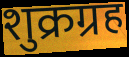
शुक्रग्रह